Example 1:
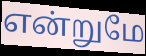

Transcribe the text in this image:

என்றுமே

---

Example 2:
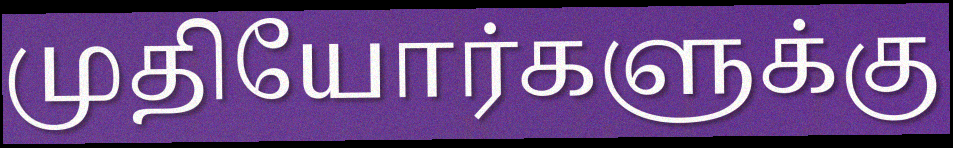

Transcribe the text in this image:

முதியோர்களுக்கு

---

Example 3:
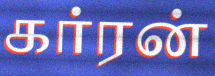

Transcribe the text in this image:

கர்ரன்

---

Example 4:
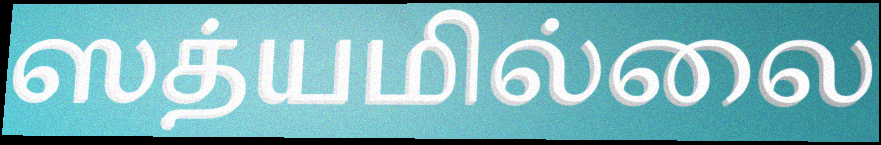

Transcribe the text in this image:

ஸத்யமில்லை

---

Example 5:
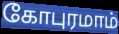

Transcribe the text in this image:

கோபுரமாம்